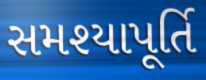
સમશ્યાપૂર્તિ